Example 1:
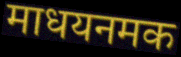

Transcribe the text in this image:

माधयनमक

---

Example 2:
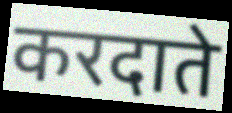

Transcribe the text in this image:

करदाते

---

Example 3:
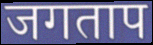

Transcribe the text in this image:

जगताप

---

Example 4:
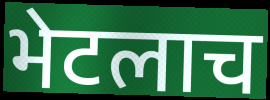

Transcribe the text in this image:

भेटलाच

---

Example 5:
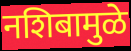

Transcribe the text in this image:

नशिबामुळे